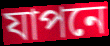
যাপনে